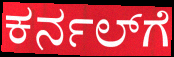
ಕರ್ನಲ್‌ಗೆ